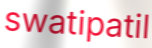
swatipatil